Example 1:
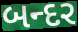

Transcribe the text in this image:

બન્દર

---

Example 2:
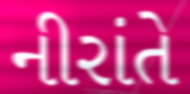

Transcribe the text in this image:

નીરાંતે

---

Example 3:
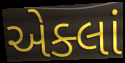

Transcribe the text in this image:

એક્લાં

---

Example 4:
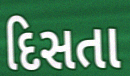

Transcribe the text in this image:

દિસતા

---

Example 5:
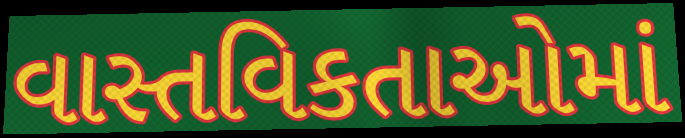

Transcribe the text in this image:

વાસ્તવિકતાઓમાં